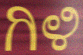
ಗಿಳಿ